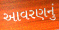
આવરણનું